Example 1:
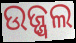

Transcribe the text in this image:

ଉଜ୍ଜ୍ୱଲ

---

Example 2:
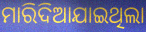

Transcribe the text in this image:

ମାରିଦିଆଯାଇଥିଲା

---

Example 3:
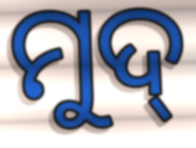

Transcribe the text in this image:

ମୁଦ୍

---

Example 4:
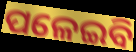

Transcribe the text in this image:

ପଳେଇବି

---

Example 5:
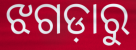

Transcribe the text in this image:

ଝଗଡ଼ାରୁ